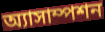
অ্যাসাম্পশন